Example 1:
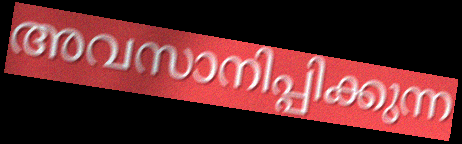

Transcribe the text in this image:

അവസാനിപ്പിക്കുന്ന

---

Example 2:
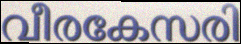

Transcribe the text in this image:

വീരകേസരി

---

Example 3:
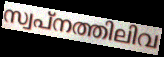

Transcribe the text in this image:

സ്വപ്നത്തിലിവ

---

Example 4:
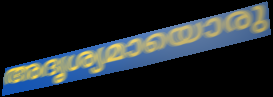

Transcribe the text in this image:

അദൃശ്യമായൊരു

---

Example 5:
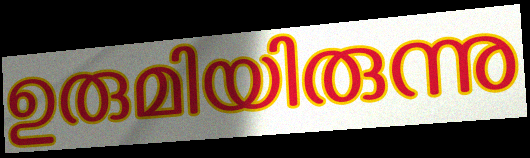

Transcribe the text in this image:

ഉരുമിയിരുന്നു